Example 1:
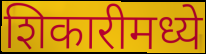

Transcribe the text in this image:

शिकारीमध्ये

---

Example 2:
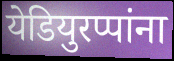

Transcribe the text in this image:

येडियुरप्पांना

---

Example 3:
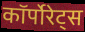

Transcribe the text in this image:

कॉर्पोरेट्स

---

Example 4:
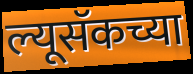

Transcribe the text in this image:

ल्यूसॅकच्या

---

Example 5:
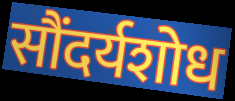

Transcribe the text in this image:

सौंदर्यशोध